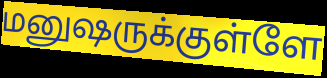
மனுஷருக்குள்ளே